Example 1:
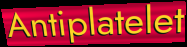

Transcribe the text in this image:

Antiplatelet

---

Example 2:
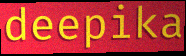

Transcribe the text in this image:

deepika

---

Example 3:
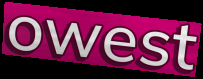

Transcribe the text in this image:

owest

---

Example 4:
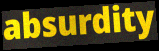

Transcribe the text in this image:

absurdity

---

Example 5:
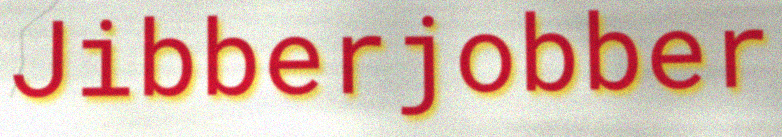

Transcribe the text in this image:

Jibberjobber